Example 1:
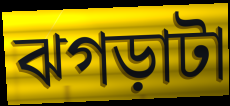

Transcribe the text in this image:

ঝগড়াটা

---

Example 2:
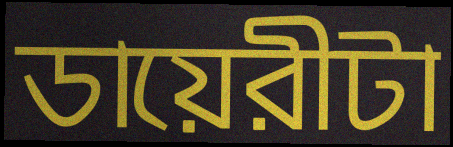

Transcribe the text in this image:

ডায়েরীটা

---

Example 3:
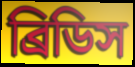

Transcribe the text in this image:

ব্রিডিস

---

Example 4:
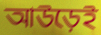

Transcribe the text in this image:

আউড়েই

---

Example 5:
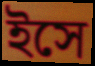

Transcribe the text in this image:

ইসে